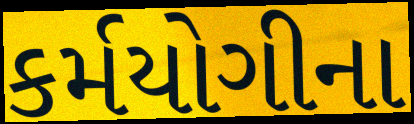
કર્મયોગીના